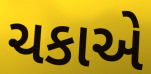
ચકાએ